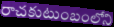
రాచకుటుంబంలోని